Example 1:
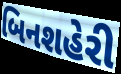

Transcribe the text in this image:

બિનશહેરી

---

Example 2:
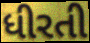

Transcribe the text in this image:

ધીરતી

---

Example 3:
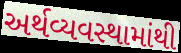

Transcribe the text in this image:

અર્થવ્યવસ્થામાંથી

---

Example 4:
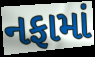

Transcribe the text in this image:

નફામાં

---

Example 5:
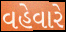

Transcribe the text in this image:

વહેવારે